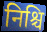
निश्चि